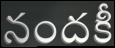
నందకీ